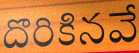
దొరికినవే